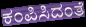
ಕಂಪಿಸಿದಂತೆ